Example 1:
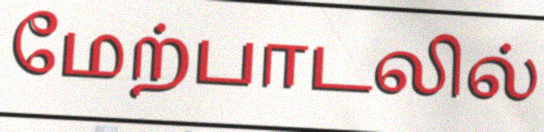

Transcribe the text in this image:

மேற்பாடலில்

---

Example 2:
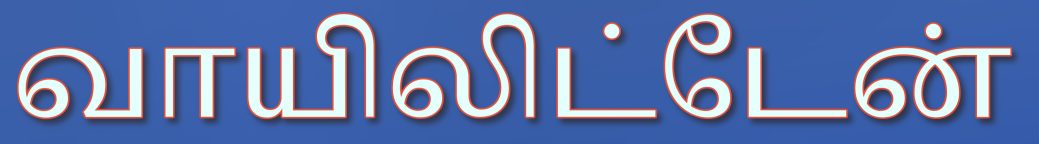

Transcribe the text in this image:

வாயிலிட்டேன்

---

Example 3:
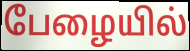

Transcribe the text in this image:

பேழையில்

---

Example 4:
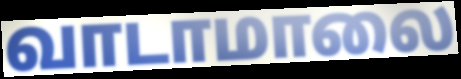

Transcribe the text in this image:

வாடாமாலை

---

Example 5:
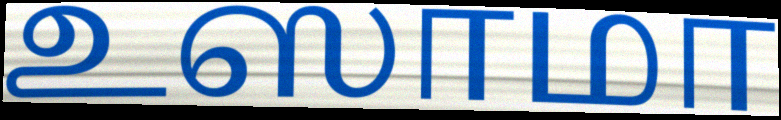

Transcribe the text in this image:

உஸாமா